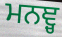
ਮਨਞ੍ਚ